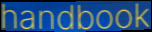
handbook